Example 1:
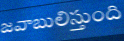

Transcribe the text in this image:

జవాబులిస్తుంది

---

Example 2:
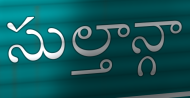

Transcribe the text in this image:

సుల్తాన్గా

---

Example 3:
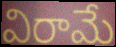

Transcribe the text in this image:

విరామే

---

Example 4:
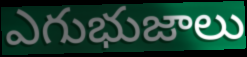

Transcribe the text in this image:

ఎగుభుజాలు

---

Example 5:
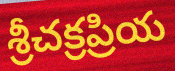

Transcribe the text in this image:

శ్రీచక్రప్రియ